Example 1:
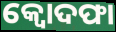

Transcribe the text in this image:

କ୍ବୋଦଫା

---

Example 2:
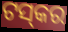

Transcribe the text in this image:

ଟସ୍‍କର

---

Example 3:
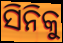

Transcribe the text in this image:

ସିନିକୁ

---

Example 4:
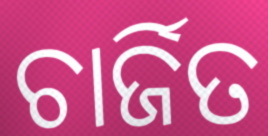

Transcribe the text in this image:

ଚାର୍ଜିତ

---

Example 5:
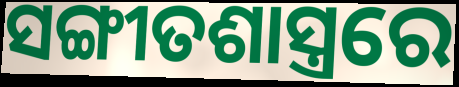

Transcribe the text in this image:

ସଙ୍ଗୀତଶାସ୍ତ୍ରରେ